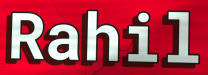
Rahil